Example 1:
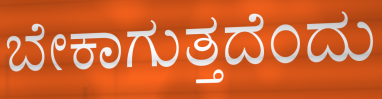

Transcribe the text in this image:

ಬೇಕಾಗುತ್ತದೆಂದು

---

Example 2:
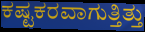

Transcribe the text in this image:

ಕಷ್ಟಕರವಾಗುತ್ತಿತ್ತು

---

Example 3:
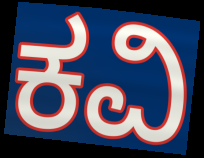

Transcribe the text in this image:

ಕವಿ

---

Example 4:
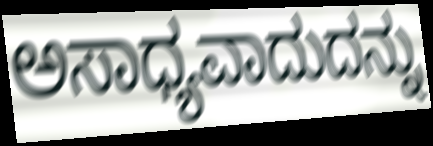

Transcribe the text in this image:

ಅಸಾಧ್ಯವಾದುದನ್ನು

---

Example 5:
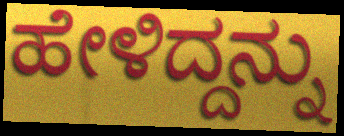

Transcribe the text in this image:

ಹೇಳಿದ್ದನ್ನು